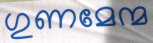
ഗുണമേന്മ